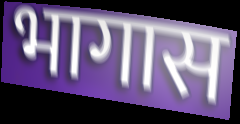
भागास